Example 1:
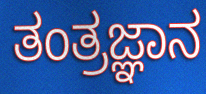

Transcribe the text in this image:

ತಂತ್ರಜ್ಞಾನ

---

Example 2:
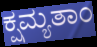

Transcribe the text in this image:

ಕ್ಷಮ್ಯತಾಂ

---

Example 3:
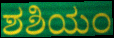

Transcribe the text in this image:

ಶಶಿಯಂ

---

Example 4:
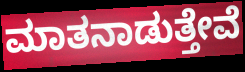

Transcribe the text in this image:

ಮಾತನಾಡುತ್ತೇವೆ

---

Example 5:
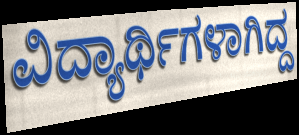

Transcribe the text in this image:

ವಿದ್ಯಾರ್ಥಿಗಳಾಗಿದ್ದ